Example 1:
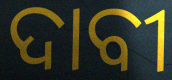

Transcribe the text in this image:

ଦାବୀ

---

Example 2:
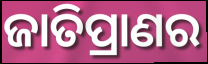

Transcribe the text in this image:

ଜାତିପ୍ରାଣର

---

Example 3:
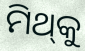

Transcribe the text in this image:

ମିଥ୍‍କୁ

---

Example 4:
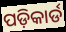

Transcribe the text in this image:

ପଡ଼ିକାର୍ଡ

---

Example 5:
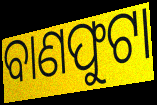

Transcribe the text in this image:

ବାଣଫୁଟା